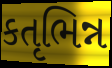
કતૃભિન્ન